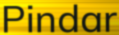
Pindar